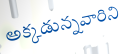
అక్కడున్నవారిని